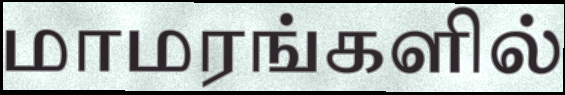
மாமரங்களில்